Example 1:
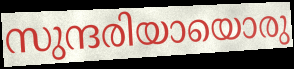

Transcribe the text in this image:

സുന്ദരിയായൊരു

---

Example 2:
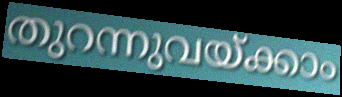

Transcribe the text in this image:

തുറന്നുവയ്ക്കാം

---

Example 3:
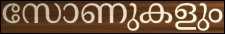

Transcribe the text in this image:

സോണുകളും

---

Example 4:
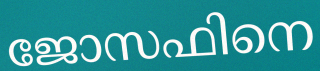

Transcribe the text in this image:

ജോസഫിനെ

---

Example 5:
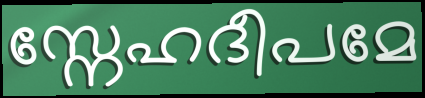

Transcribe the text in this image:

സ്നേഹദീപമേ